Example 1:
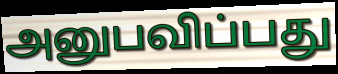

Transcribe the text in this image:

அனுபவிப்பது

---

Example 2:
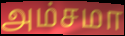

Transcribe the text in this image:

அம்சமா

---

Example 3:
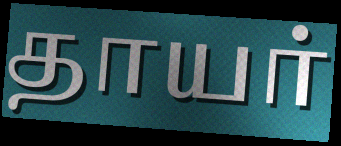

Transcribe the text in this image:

தாயர்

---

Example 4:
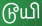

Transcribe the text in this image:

டூயி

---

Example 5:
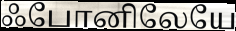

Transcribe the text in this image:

ஃபோனிலேயே